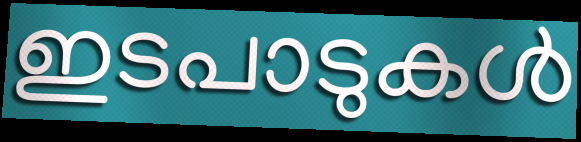
ഇടപാടുകൾ